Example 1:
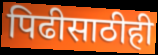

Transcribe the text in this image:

पिढीसाठीही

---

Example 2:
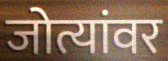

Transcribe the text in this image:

जोत्यांवर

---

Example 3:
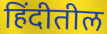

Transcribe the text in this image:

हिंदीतील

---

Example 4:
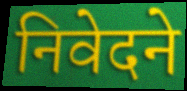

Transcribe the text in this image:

निवेदने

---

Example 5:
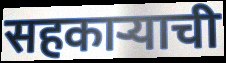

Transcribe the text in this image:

सहकाऱ्याची